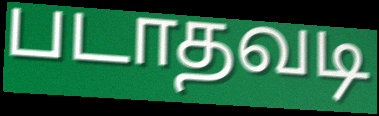
படாதவடி